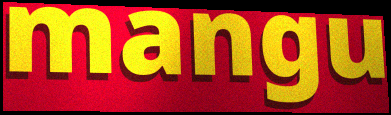
mangu